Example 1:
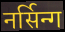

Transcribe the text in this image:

नर्सिन्ग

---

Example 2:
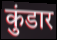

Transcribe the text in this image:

कुंडार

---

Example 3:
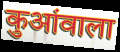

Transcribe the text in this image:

कुआंवाला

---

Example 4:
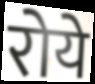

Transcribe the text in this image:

रोये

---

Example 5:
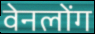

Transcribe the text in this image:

वेनलोंग